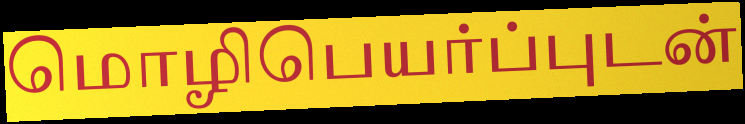
மொழிபெயர்ப்புடன்